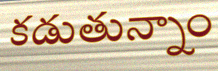
కడుతున్నాం